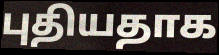
புதியதாக